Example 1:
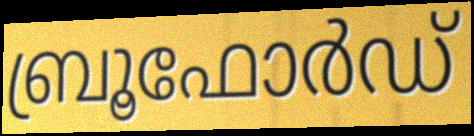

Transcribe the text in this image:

ബ്രൂഫോർഡ്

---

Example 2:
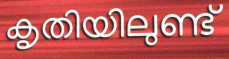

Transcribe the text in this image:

കൃതിയിലുണ്ട്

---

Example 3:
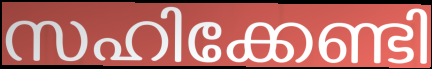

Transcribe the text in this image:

സഹിക്കേണ്ടി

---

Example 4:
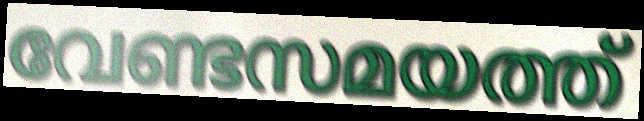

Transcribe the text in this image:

വേണ്ടസമയത്ത്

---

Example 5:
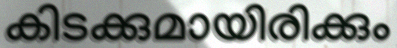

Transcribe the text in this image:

കിടക്കുമായിരിക്കും